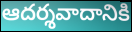
ఆదర్శవాదానికి